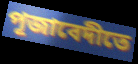
পূজাবেদীতে